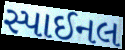
સ્પાઈનલ